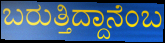
ಬರುತ್ತಿದ್ದಾನೆಂಬ